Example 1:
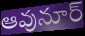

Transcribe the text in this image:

ఆవునూర్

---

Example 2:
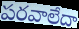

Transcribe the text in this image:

పరవాలేదా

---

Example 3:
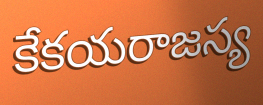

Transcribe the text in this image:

కేకయరాజస్య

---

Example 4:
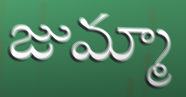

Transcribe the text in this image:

జుమ్మా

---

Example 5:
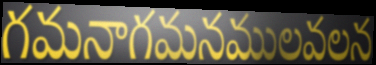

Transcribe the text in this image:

గమనాగమనములవలన